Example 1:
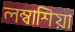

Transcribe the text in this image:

লম্বাশিয়া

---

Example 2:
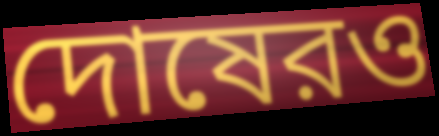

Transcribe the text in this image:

দোষেরও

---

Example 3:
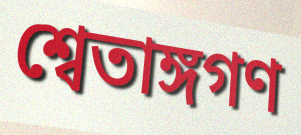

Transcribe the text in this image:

শ্বেতাঙ্গগণ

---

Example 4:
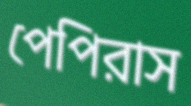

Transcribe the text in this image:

পেপিরাস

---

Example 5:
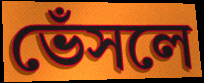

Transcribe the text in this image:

ভেঁসলে